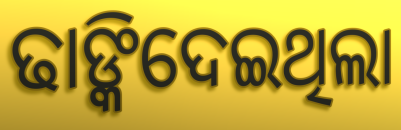
ଢାଙ୍କିଦେଇଥିଲା